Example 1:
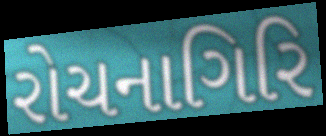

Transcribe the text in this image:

રોચનાગિરિ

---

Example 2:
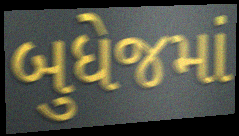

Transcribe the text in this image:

બુધેજમાં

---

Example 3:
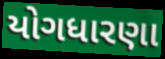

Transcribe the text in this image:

યોગધારણા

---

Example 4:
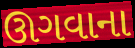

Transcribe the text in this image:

ઊગવાના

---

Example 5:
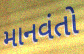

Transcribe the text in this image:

માનવંતો